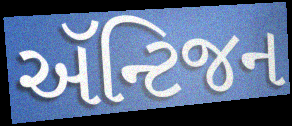
ઍન્ટિજન